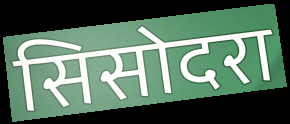
सिसोदरा